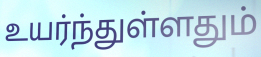
உயர்ந்துள்ளதும்